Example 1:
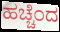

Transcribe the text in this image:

ಹಚ್ಚೆಂದ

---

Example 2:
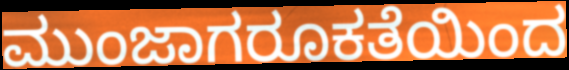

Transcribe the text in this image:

ಮುಂಜಾಗರೂಕತೆಯಿಂದ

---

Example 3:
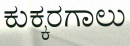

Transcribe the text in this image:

ಕುಕ್ಕರಗಾಲು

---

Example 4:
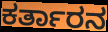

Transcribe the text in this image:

ಕರ್ತಾರನ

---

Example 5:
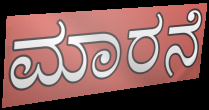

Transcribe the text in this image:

ಮಾರನೆ